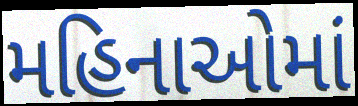
મહિનાઓમાં